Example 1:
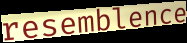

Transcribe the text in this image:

resemblence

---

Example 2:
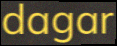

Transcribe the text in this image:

dagar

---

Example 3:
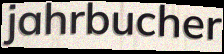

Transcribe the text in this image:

jahrbucher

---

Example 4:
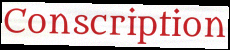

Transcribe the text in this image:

Conscription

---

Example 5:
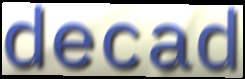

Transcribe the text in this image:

decad